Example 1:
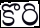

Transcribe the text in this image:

కొరి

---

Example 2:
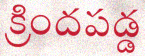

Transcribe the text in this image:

క్రిందపడ్డ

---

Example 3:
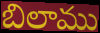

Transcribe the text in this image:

బిలాము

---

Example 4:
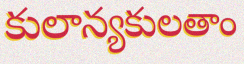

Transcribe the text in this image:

కులాన్యకులతాం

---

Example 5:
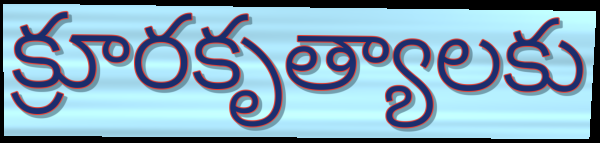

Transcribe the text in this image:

క్రూరకృత్యాలకు